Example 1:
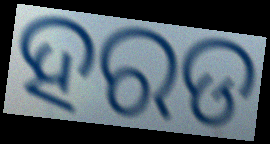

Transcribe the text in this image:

ହରଡ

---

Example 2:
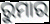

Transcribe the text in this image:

ରୁମାର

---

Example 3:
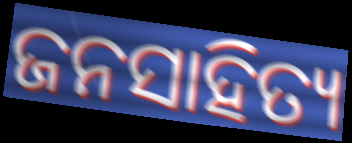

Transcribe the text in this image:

ଜନସାହିତ୍ୟ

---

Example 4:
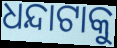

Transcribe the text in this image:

ଧନ୍ଦାଟାକୁ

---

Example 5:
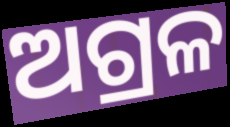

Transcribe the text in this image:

ଅଗ୍ରଳ